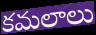
కమలాలు